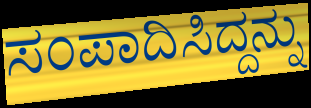
ಸಂಪಾದಿಸಿದ್ದನ್ನು